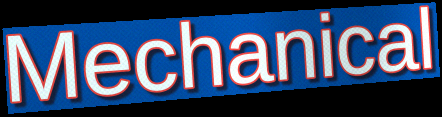
Mechanical